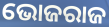
ଭୋଜରାଜ